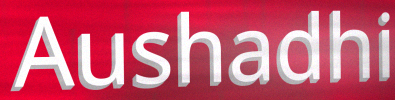
Aushadhi